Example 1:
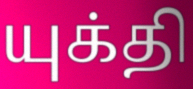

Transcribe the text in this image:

யுக்தி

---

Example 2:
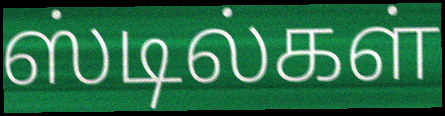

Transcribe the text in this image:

ஸ்டில்கள்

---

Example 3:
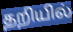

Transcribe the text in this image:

தறியில்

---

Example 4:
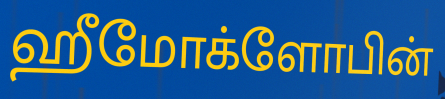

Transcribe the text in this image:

ஹீமோக்ளோபின்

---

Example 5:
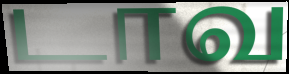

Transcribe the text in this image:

டாவ